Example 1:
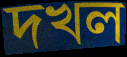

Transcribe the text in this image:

দখল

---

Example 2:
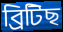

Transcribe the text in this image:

ব্ৰিটিছ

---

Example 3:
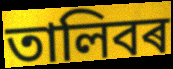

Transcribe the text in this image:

তালিবৰ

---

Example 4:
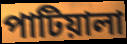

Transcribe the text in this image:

পাটিয়ালা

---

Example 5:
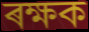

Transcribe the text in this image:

ৰক্ষক